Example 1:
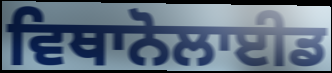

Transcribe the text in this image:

ਵਿਥਾਨੋਲਾਈਡ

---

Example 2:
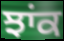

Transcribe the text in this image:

ਝਾਂਕ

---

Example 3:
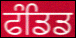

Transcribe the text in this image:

ਫੰਡਿਡ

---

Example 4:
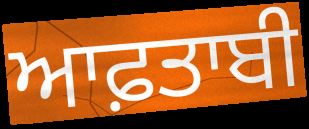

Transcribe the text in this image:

ਆਫ਼ਤਾਬੀ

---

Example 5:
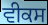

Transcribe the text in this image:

ਵੀਕਸ